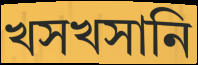
খসখসানি